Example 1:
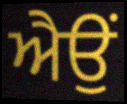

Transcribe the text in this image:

ਐਉਂ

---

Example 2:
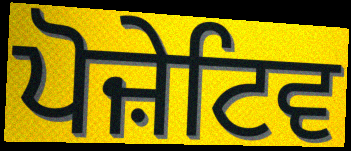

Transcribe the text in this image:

ਪੋਜ਼ੇਟਿਵ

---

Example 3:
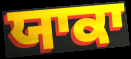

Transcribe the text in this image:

ਯਾਕਾ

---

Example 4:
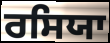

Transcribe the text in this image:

ਰਸਿਯਾ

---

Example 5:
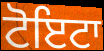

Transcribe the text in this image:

ਟੋਇਟਾ